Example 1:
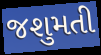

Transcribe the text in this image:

જશુમતી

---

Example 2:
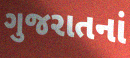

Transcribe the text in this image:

ગુજરાતનાં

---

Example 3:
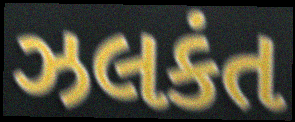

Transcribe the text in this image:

ઝલકંત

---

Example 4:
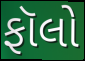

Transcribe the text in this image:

ફૉલો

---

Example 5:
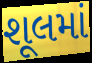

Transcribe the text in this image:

શૂલમાં